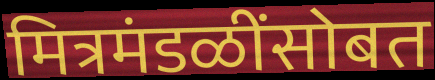
मित्रमंडळींसोबत